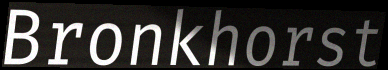
Bronkhorst